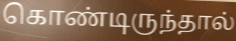
கொண்டிருந்தால்